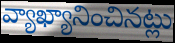
వ్యాఖ్యానించినట్లు